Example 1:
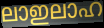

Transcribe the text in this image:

ലാഇലാഹ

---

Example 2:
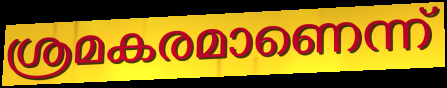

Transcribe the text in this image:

ശ്രമകരമാണെന്ന്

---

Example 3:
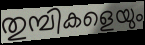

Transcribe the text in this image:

തുമ്പികളെയും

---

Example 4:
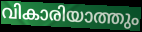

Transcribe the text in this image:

വികാരിയാത്തും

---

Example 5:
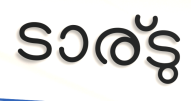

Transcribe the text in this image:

ടാര്ടു